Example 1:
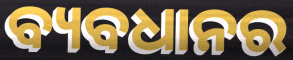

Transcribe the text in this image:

ବ୍ୟବଧାନର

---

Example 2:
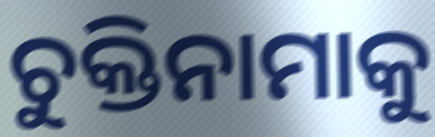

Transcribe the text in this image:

ଚୁକ୍ତିନାମାକୁ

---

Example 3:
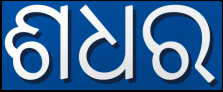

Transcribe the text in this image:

ଶଧର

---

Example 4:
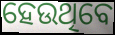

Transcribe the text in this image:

ହେଉଥିବେ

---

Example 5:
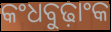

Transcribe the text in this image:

କଂଧବୁଢ଼ାଂକ